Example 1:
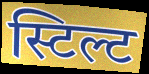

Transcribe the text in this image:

स्टिल्ट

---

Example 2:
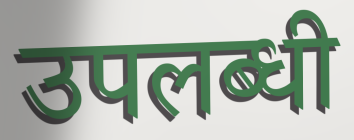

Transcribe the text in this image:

उपलब्धी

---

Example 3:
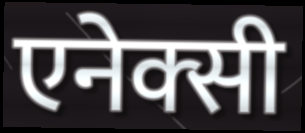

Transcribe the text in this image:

एनेक्‍सी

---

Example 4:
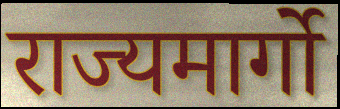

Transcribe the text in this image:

राज्यमार्गो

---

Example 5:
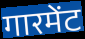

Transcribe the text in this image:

गारमेंट